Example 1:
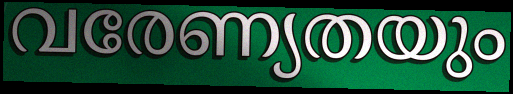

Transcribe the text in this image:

വരേണ്യതയും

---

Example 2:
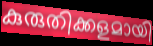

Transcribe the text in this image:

കുരുതിക്കളമായി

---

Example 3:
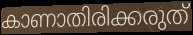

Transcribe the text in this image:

കാണാതിരിക്കരുത്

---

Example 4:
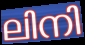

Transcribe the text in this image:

ലിനി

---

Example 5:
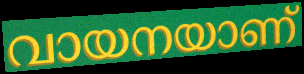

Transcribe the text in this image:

വായനയാണ്